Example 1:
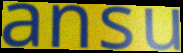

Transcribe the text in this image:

ansu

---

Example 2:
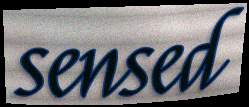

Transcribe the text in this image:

sensed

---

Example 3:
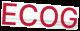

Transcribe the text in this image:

ECOG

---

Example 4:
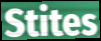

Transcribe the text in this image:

Stites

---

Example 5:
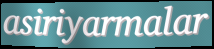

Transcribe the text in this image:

asiriyarmalar